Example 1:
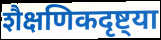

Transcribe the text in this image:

शैक्षणिकदृष्ट्या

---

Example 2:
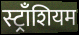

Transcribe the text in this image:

स्ट्राँशियम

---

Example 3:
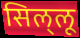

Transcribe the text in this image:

सिल्लू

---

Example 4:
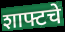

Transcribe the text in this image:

शाफ्टचे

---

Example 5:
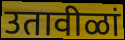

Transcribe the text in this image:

उतावीळां